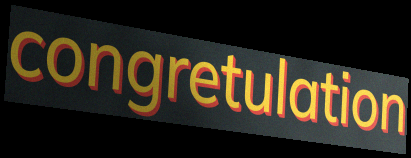
congretulation